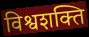
विश्वशक्ति